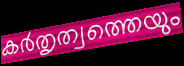
കർതൃത്വത്തെയും